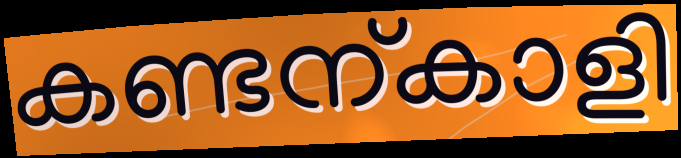
കണ്ടന്കാളി